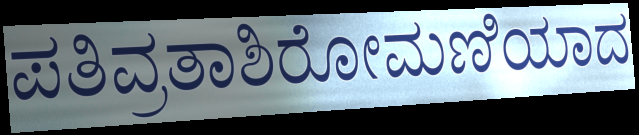
ಪತಿವ್ರತಾಶಿರೋಮಣಿಯಾದ